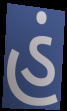
હં